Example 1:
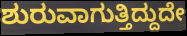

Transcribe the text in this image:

ಶುರುವಾಗುತ್ತಿದ್ದುದೇ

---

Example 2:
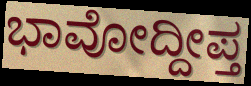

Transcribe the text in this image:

ಭಾವೋದ್ದೀಪ್ತ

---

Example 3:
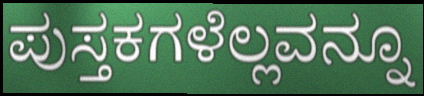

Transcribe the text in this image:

ಪುಸ್ತಕಗಳೆಲ್ಲವನ್ನೂ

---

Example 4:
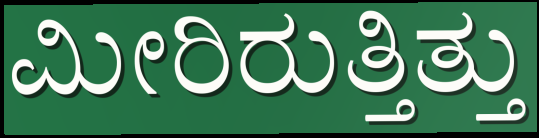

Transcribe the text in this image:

ಮೀರಿರುತ್ತಿತ್ತು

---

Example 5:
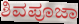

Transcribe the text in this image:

ಶಿವಪೂಜಾ